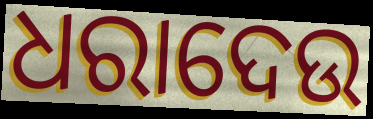
ଧରାଦେଉ